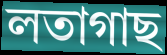
লতাগাছ